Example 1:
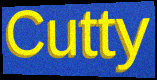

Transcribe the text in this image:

Cutty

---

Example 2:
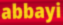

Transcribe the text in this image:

abbayi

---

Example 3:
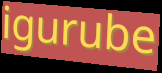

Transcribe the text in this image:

igurube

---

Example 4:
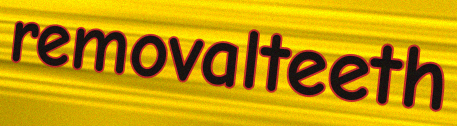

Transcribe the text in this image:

removalteeth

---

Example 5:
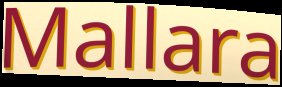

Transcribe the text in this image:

Mallara